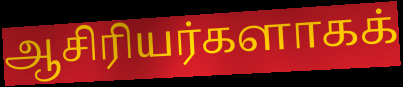
ஆசிரியர்களாகக்